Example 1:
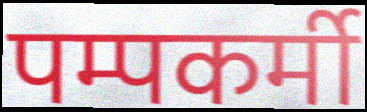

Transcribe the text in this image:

पम्पकर्मी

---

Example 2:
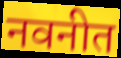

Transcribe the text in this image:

नवनीत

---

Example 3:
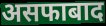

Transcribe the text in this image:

असफाबाद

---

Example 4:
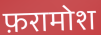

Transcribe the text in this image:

फ़रामोश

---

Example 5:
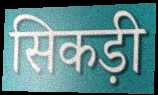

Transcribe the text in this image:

सिकड़ी